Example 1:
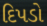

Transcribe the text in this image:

દિપડો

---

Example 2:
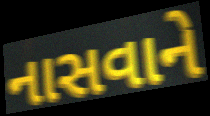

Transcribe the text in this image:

નાસવાને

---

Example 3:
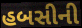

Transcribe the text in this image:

હબસીની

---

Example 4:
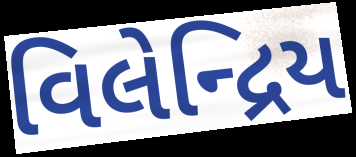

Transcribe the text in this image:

વિલેન્દ્રિય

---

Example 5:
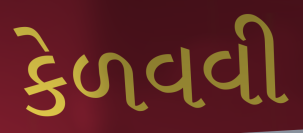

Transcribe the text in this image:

કેળવવી